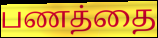
பணத்தை